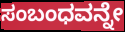
ಸಂಬಂಧವನ್ನೇ